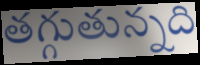
తగ్గుతున్నది